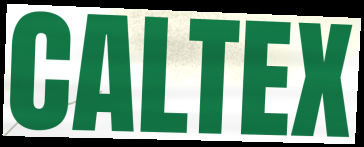
CALTEX